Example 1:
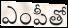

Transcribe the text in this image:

ఎంపీతో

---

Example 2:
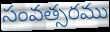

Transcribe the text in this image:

సంవత్సరము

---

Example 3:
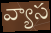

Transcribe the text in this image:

వ్యాస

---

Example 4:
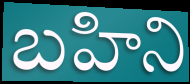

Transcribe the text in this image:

బహిని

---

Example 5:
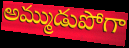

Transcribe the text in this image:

అమ్ముడుపోగా